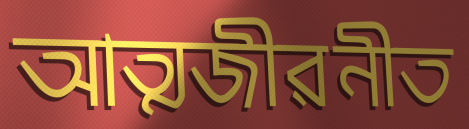
আত্মজীৱনীত